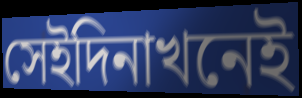
সেইদিনাখনেই